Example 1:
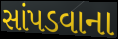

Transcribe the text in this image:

સાંપડવાના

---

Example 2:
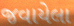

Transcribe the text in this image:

જવાયેલા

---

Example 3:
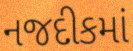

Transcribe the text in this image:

નજદીકમાં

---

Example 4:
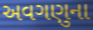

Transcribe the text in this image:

અવગણુના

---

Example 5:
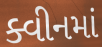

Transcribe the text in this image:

ક્વીનમાં